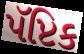
પૅપ્ટિક